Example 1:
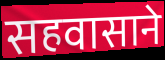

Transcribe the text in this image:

सहवासाने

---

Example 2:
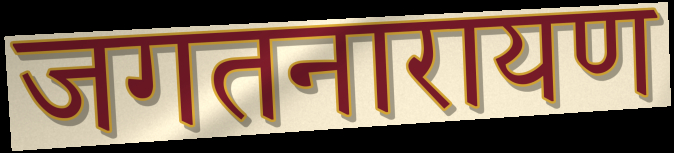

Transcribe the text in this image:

जगतनारायण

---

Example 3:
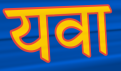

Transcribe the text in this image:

यवा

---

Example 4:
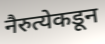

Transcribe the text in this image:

नैरुत्येकडून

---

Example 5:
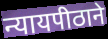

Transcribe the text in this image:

न्यायपीठाने